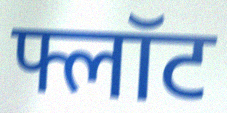
फ्लॉट